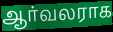
ஆர்வலராக